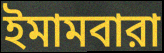
ইমামবারা